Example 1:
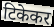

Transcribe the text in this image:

टिकेकर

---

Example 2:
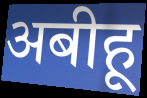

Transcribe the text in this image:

अबीहू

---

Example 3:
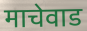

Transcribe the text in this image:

माचेवाड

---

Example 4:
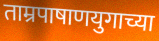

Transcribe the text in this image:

ताम्रपाषाणयुगाच्या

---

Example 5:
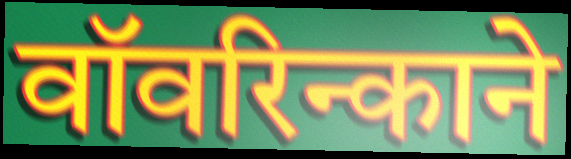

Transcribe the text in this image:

वॉवरिन्काने